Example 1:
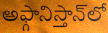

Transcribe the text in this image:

అఫ్గానిస్తాన్‌లో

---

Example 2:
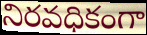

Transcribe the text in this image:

నిరవధికంగా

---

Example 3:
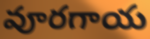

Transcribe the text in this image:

వూరగాయ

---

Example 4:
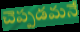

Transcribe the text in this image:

చెప్పడమనే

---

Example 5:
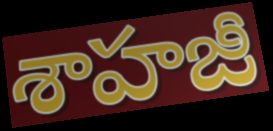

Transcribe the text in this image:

శాహజీ